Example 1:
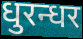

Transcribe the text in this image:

धुरन्धर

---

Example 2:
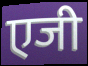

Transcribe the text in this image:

एजी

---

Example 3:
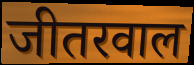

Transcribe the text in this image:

जीतरवाल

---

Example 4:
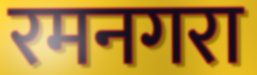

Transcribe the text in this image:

रमनगरा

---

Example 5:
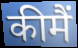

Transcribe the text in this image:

कीमैं